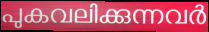
പുകവലിക്കുന്നവർ